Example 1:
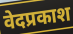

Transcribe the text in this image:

वेदप्रकाश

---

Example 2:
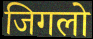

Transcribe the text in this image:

जिगलो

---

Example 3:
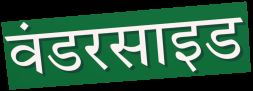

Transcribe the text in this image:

वंडरसाइड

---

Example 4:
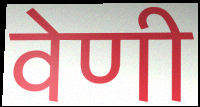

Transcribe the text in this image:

वेणी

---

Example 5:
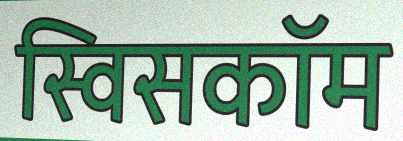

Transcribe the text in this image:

स्विसकॉम